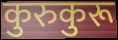
कुरुकुरू